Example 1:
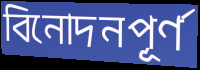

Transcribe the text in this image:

বিনোদনপূর্ণ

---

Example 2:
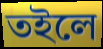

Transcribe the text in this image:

তইলে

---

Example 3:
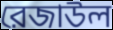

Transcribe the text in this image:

রেজাউল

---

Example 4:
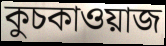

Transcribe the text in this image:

কুচকাওয়াজ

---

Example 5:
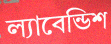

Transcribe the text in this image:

ল্যাবেন্ডিশ